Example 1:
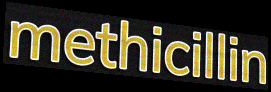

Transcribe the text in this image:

methicillin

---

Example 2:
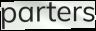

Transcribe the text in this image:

parters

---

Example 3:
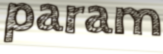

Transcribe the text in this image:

param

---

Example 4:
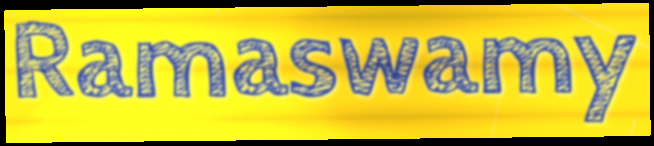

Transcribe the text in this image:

Ramaswamy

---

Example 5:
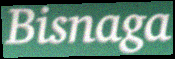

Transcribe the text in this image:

Bisnaga